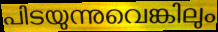
പിടയുന്നുവെങ്കിലും